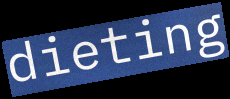
dieting